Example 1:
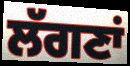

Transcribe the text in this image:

ਲੱਗਣਾਂ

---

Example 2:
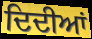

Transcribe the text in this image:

ਦਿਦੀਆਂ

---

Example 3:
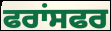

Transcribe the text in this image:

ਫਰਾਂਸਫਰ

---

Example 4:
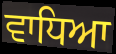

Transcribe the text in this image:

ਵਾਧਿਆ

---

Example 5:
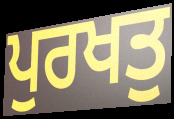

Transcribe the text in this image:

ਪੁਰਖਤੁ